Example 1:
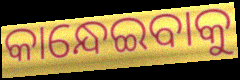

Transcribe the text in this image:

କାନ୍ଧେଇବାକୁ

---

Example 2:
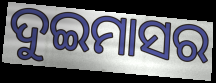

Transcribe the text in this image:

ଦୁଇମାସର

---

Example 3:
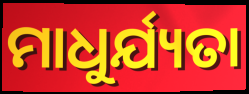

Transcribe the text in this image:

ମାଧୁର୍ଯ୍ୟତା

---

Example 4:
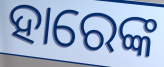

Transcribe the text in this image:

ହାରେଙ୍କ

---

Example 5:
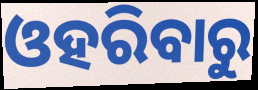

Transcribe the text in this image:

ଓହରିବାରୁ